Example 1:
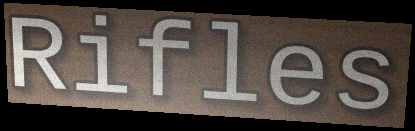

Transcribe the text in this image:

Rifles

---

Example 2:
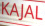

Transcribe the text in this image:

KAJAL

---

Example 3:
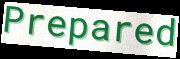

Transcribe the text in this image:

Prepared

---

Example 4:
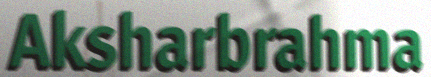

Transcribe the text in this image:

Aksharbrahma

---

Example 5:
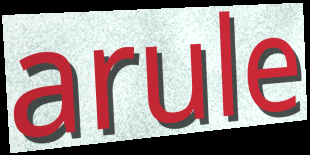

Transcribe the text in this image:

arule